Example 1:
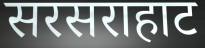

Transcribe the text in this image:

सरसराहाट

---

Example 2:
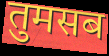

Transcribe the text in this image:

तुमसब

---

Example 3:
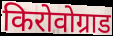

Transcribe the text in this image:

किरोवोग्राड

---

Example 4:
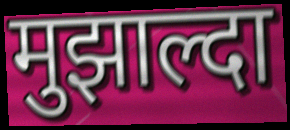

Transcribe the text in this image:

मुझाल्दा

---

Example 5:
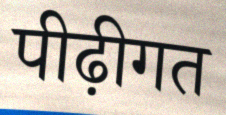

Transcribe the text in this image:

पीढ़ीगत